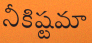
నీకిష్టమా